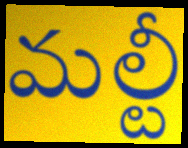
మల్టీ